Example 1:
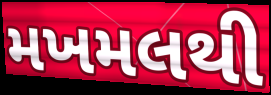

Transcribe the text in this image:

મખમલથી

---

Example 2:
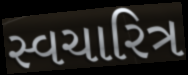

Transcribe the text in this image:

સ્વચારિત્ર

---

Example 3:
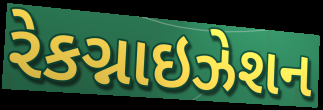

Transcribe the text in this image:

રેકગ્નાઇઝેશન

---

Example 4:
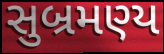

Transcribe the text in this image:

સુબ્રમણ્ય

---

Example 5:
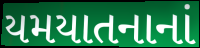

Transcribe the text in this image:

યમયાતનાનાં